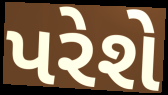
પરેશે